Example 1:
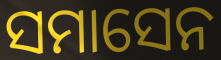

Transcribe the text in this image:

ସମାସେନ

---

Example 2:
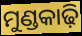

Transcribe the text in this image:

ମୁଣ୍ଡକାଢ଼ି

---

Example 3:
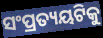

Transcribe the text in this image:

ସଂପ୍ରତ୍ୟୟଟିକୁ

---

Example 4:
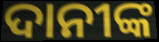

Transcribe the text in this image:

ଦାନୀଙ୍କ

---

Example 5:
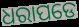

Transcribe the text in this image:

ଧରାପଡେ